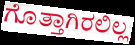
ಗೊತ್ತಾಗಿರಲಿಲ್ಲ